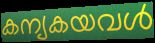
കന്യകയവൾ